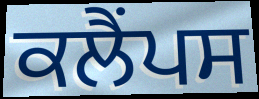
ਕਲੈਂਪਸ